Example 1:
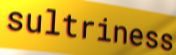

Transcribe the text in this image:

sultriness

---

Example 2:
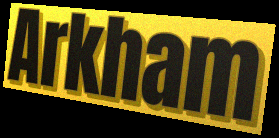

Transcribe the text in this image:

Arkham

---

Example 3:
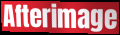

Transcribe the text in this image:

Afterimage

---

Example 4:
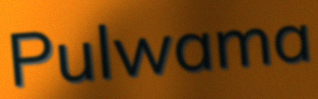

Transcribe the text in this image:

Pulwama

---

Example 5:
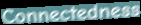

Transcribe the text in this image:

Connectedness